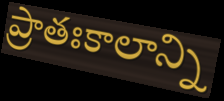
ప్రాతఃకాలాన్ని